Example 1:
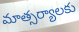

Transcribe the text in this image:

మాత్సర్యాలకు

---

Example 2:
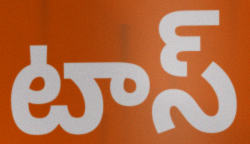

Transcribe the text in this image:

టాస్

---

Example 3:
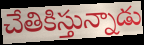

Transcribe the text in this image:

చేతికిస్తున్నాడు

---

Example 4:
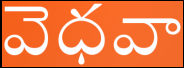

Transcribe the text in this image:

వెధవా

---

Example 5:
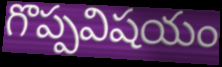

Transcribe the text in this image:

గొప్పవిషయం